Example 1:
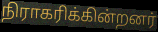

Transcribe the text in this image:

நிராகரிக்கின்றனர்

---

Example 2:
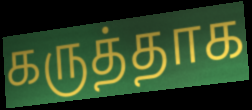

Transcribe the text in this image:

கருத்தாக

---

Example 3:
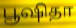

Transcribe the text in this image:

பூஷிதா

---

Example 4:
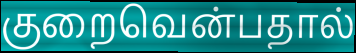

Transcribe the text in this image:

குறைவென்பதால்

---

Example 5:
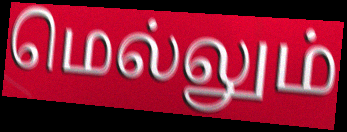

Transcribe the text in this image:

மெல்லும்